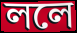
ললে